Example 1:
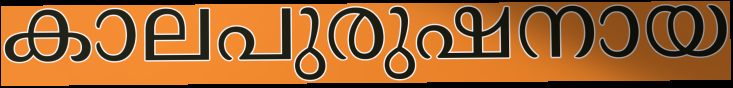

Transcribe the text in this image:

കാലപുരുഷനായ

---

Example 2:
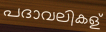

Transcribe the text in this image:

പദാവലികള്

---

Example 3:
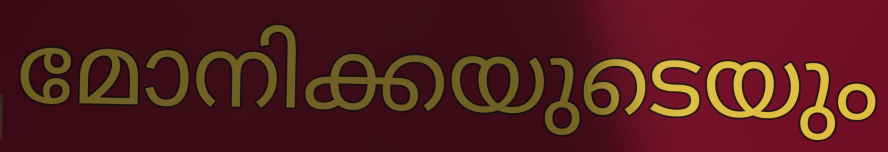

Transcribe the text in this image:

മോനിക്കയുടെയും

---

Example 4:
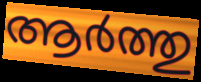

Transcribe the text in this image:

ആർത്തു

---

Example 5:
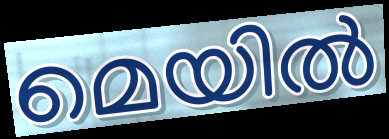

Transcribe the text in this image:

മെയിൽ